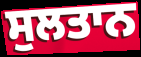
ਸੁਲਤਾਨ